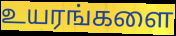
உயரங்களை